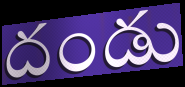
దండు